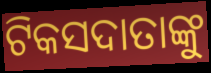
ଟିକସଦାତାଙ୍କୁ